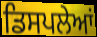
ਡਿਸਪਲੇਆਂ